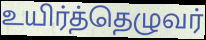
உயிர்த்தெழுவர்